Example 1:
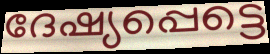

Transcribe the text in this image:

ദേഷ്യപ്പെട്ടെ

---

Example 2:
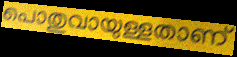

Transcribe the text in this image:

പൊതുവായുള്ളതാണ്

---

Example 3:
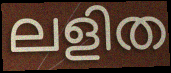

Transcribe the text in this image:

ലളിത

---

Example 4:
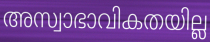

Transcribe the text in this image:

അസ്വാഭാവികതയില്ല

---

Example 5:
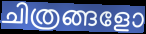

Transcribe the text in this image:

ചിത്രങ്ങളോ